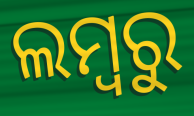
ଲମ୍ବରୁ